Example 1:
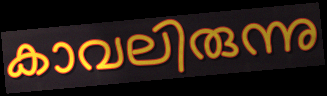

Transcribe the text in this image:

കാവലിരുന്നു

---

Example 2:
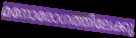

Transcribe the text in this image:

മനോരോഗത്തിലേക്കു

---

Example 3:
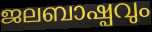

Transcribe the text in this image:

ജലബാഷ്പവും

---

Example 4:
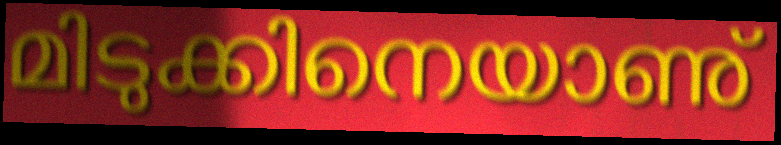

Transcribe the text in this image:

മിടുക്കിനെയാണു്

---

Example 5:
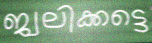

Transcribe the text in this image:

ജ്വലിക്കട്ടെ